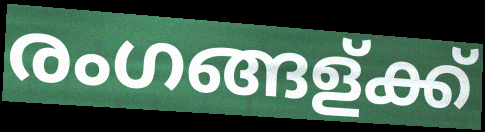
രംഗങ്ങള്ക്ക്